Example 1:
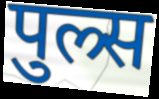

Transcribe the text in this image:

पुल्स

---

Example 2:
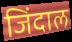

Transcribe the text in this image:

जिंदाल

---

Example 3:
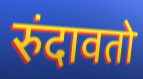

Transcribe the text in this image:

रुंदावतो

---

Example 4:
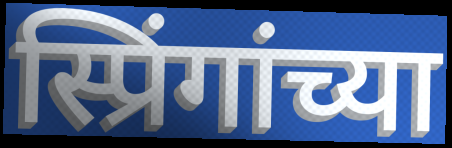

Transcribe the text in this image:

स्प्रिंगांच्या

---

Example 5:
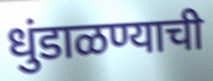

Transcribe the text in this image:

धुंडाळण्याची